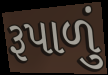
રૂપાળું